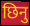
छिनु